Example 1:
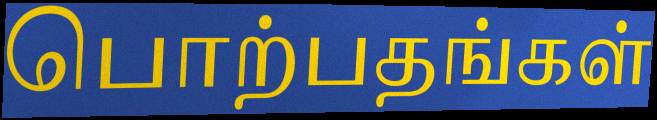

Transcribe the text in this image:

பொற்பதங்கள்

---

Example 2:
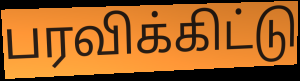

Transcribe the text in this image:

பரவிக்கிட்டு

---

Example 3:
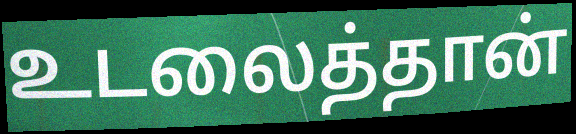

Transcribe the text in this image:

உடலைத்தான்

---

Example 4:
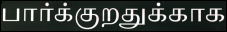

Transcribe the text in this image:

பார்க்குறதுக்காக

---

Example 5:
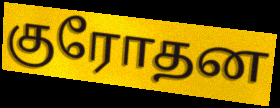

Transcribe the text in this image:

குரோதன